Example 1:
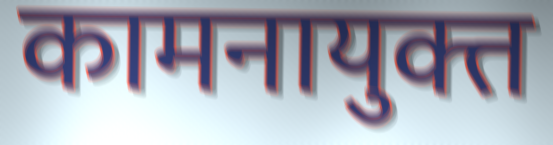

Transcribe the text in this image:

कामनायुक्त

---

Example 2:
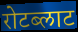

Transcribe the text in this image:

रोटब्लाट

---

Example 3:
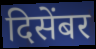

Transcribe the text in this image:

दिसेंबर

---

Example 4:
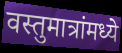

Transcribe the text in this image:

वस्तुमात्रांमध्ये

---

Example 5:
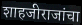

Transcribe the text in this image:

शाहजीराजांचा